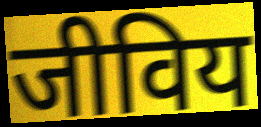
जीविय